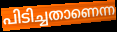
പിടിച്ചതാണെന്ന